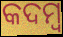
କଦମ୍ୱ